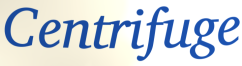
Centrifuge